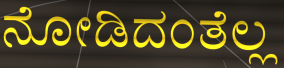
ನೋಡಿದಂತೆಲ್ಲ